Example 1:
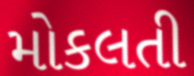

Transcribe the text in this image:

મોકલતી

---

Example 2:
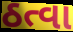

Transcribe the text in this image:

ઠત્વા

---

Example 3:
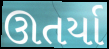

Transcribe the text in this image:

ઊતર્યા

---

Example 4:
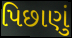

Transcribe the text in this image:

પિછાણું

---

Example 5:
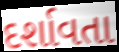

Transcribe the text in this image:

દર્શાવતા